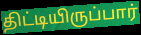
திட்டியிருப்பார்